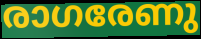
രാഗരേണു